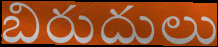
బిరుదులు